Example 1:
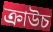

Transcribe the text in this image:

ক্রাউচ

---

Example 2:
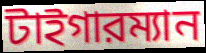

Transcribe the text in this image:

টাইগারম্যান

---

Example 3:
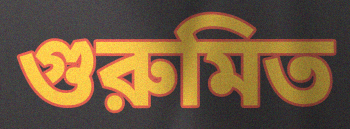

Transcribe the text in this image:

গুরুমিত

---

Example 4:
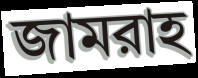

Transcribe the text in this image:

জামরাহ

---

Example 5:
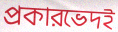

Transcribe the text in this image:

প্রকারভেদই